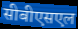
सीबीएसएल